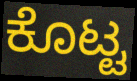
ಕೊಟ್ಟ